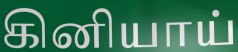
கினியாய்